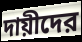
দায়ীদের